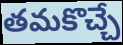
తమకొచ్చే